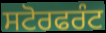
ਸਟੋਰਫਰੰਟ